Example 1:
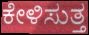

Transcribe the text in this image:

ಕೇಳಿಸುತ್ತ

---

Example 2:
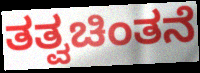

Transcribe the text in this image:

ತತ್ವಚಿಂತನೆ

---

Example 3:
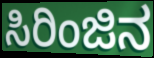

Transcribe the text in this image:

ಸಿರಿಂಜಿನ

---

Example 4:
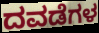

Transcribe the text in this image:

ದವಡೆಗಳ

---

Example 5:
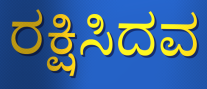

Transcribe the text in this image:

ರಕ್ಷಿಸಿದವ